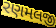
રણમલજી